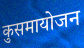
कुसमायोजन